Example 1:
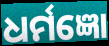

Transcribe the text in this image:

ଧର୍ମଜ୍ଞୋ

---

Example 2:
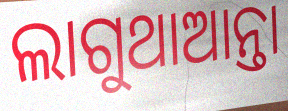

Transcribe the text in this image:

ଲାଗୁଥାଆନ୍ତା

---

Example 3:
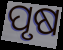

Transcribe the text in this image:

ପୃଷ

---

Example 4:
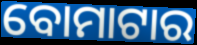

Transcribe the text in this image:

ବୋମାଟାର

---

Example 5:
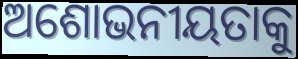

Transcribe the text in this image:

ଅଶୋଭନୀୟତାକୁ